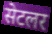
सेटलर